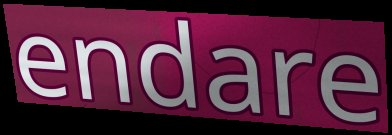
endare